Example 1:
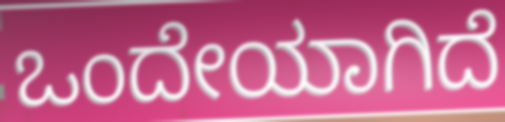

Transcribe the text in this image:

ಒಂದೇಯಾಗಿದೆ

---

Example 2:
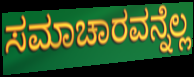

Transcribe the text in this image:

ಸಮಾಚಾರವನ್ನೆಲ್ಲ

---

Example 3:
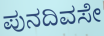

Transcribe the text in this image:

ಪುನದಿವಸೇ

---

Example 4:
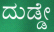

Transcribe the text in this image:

ದುಡ್ಡೇ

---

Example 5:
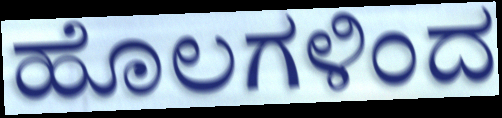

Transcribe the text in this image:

ಹೊಲಗಳಿಂದ